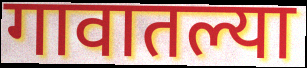
गावातल्या